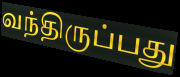
வந்திருப்பது